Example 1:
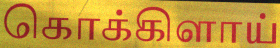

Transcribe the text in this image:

கொக்கிளாய்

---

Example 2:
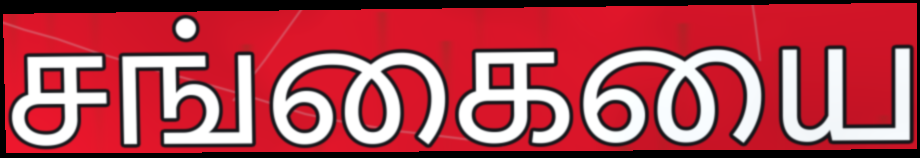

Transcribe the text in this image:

சங்கையை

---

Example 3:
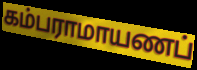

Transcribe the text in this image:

கம்பராமாயணப்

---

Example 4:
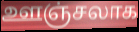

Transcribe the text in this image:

ஊஞ்சலாக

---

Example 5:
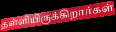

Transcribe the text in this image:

தள்ளியிருக்கிறார்கள்